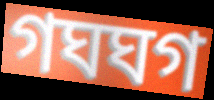
গঘঘগ